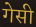
गेसी